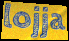
lojja